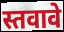
स्तवावे